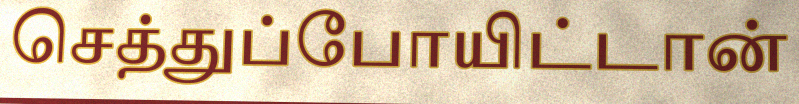
செத்துப்போயிட்டான்